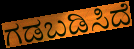
ಗಡಬಡಿಸಿದೆ